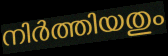
നിർത്തിയതും